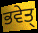
ਭਵੇਤ੍